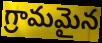
గ్రామమైన